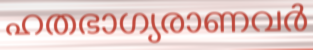
ഹതഭാഗ്യരാണവർ